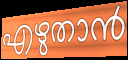
എഴുതാൻ